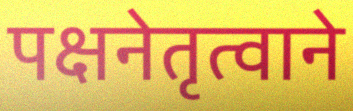
पक्षनेतृत्वाने